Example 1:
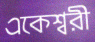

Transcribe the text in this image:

একেশ্বরী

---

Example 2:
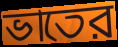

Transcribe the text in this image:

ভাতের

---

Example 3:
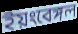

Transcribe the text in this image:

ইয়ংবেঙ্গল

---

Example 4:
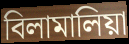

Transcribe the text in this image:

বিলামালিয়া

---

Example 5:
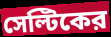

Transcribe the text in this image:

সেল্টিকের